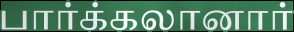
பார்க்கலானார்